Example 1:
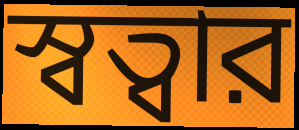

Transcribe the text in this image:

স্বত্বার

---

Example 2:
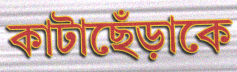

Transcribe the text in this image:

কাটাছেঁড়াকে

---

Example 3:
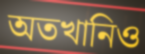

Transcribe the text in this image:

অতখানিও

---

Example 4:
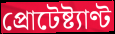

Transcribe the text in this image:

প্রোটেষ্ট্যাণ্ট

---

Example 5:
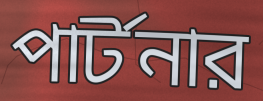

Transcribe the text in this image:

পার্টনার